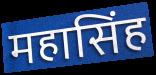
महासिंह